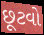
છૂટવો